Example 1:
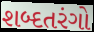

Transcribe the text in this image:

શબ્દતરંગો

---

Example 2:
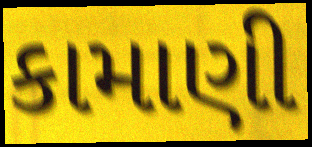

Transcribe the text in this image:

કામાણી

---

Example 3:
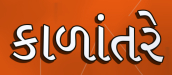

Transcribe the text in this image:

કાળાંતરે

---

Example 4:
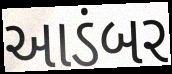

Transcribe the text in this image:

આડંબર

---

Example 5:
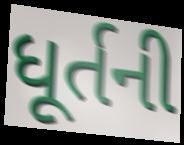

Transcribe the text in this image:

ધૂર્તની